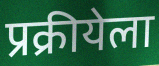
प्रक्रीयेला